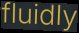
fluidly